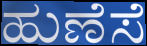
ಹುಣೆಸೆ